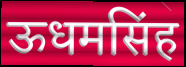
ऊधमसिंह